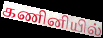
கணினியில்